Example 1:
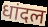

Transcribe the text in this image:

धांदल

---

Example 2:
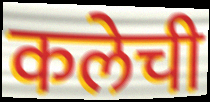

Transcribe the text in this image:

कलेची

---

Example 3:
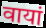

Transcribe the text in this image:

वायां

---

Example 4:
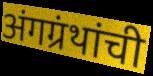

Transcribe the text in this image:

अंगग्रंथांची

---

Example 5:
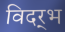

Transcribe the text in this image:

विदर्भ